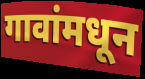
गावांमधून